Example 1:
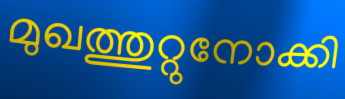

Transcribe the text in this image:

മുഖത്തുറ്റുനോക്കി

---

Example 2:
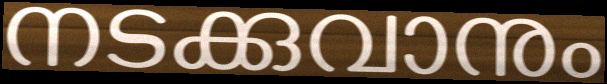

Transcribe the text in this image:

നടക്കുവാനും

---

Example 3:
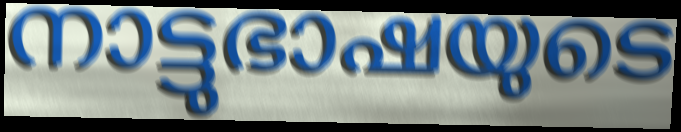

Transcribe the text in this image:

നാട്ടുഭാഷയുടെ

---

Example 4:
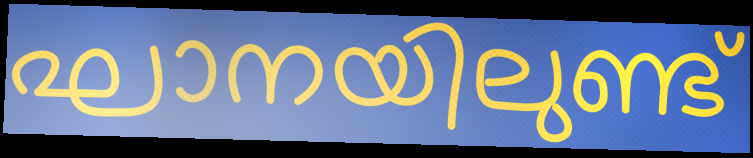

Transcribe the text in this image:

ഘാനയിലുണ്ട്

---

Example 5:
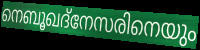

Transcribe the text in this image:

നെബൂഖദ്നേസരിനെയും